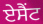
ਏਸੈਂਟ